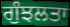
ਗੁੰਝਲਤਾ